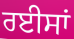
ਰਈਸਾਂ